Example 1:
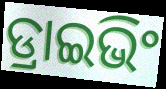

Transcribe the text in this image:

ଡ୍ରାଇଭିଂ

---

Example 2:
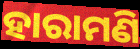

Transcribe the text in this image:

ହାରାମଣି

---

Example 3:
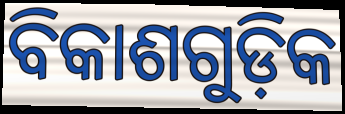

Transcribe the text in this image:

ବିକାଶଗୁଡ଼ିକ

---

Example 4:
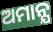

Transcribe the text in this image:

ଅମାନ୍ଯ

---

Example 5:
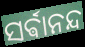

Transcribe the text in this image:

ସର୍ଵାନନ୍ଦ